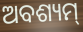
ଅବଶ୍ୟମ୍